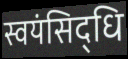
स्वयंसिद्धि